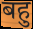
बहु